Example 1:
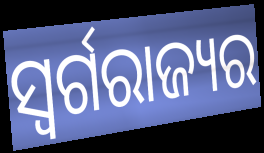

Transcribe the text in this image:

ସ୍ୱର୍ଗରାଜ୍ୟର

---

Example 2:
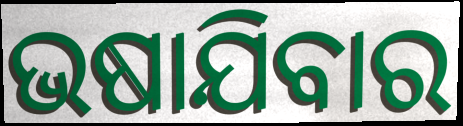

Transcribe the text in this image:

ଭଷାଯିବାର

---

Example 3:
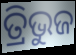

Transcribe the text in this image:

ତ୍ରିଭୁଜ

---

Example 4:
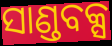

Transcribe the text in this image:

ସାଣ୍ଡବକ୍ସ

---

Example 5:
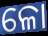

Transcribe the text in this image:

ଳୋ